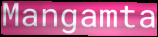
Mangamta